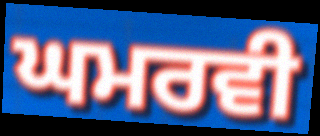
ਘਮਰਵੀ